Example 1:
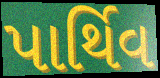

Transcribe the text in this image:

પાર્થિવ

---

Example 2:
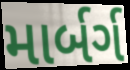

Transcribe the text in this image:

માર્બર્ગ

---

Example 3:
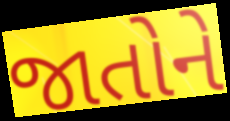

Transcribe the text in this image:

જાતોને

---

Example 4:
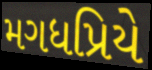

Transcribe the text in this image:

મગધપ્રિયે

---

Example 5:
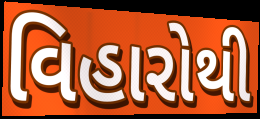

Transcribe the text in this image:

વિહારોથી